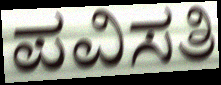
ಪವಿಸತಿ